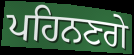
ਪਹਿਨਣਗੇ